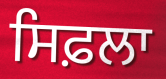
ਸਿਫ਼ਲਾ